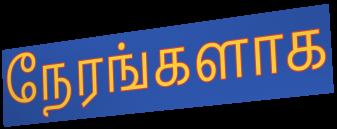
நேரங்களாக